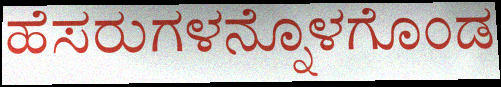
ಹೆಸರುಗಳನ್ನೊಳಗೊಂಡ